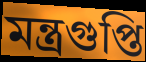
মন্ত্রগুপ্তি